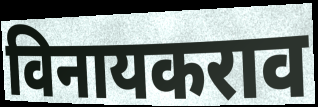
विनायकराव